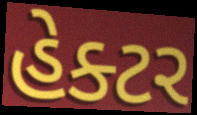
હેક્ટર